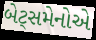
બેટ્સમેનોએ